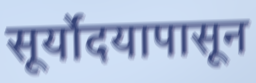
सूर्योदयापासून